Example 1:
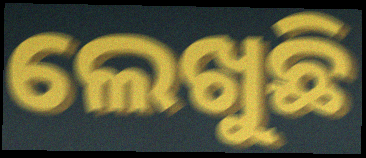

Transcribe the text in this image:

ଲେଖୁଛି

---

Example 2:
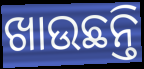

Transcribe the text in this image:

ଖାଉଛନ୍ତି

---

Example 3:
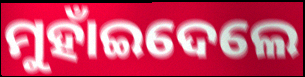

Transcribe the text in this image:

ମୁହାଁଇଦେଲେ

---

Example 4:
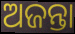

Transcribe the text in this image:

ଅଜନ୍ତା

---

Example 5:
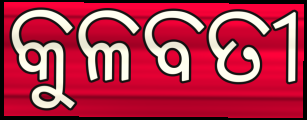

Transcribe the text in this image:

କୁଳବତୀ